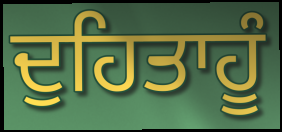
ਦੁਹਿਤਾਹੂੰ